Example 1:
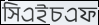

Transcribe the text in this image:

সিএইচএফ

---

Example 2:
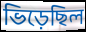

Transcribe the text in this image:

ভিড়েছিল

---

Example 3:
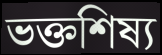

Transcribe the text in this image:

ভক্তশিষ্য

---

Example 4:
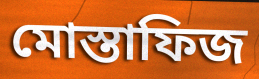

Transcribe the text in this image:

মোস্তাফিজ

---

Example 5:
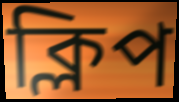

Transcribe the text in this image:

ক্লিপ